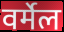
वर्मेल